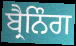
ਬ੍ਰੈਨਿੰਗ